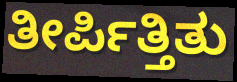
ತೀರ್ಪಿತ್ತಿತು